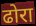
ढोरा